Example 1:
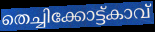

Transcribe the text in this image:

തെച്ചിക്കോട്ട്കാവ്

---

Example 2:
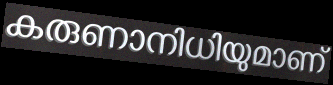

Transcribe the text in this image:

കരുണാനിധിയുമാണ്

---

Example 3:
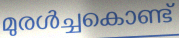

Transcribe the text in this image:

മുരൾച്ചകൊണ്ട്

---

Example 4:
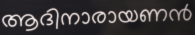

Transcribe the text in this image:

ആദിനാരായണൻ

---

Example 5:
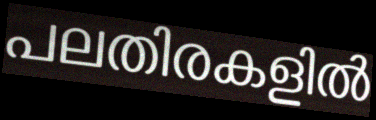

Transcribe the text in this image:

പലതിരകളിൽ